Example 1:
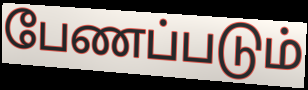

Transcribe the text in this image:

பேணப்படும்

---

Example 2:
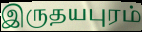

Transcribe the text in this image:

இருதயபுரம்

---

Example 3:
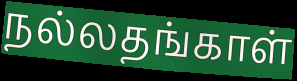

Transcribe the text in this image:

நல்லதங்காள்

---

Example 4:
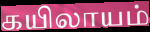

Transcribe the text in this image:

கயிலாயம்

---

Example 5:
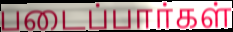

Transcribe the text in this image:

படைப்பார்கள்